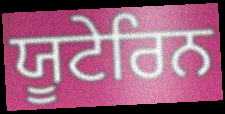
ਯੂਟੇਰਿਨ